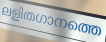
ലളിതഗാനത്തെ